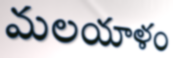
మలయాళం